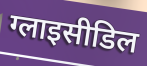
ग्लाइसीडिल